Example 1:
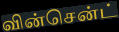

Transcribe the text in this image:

வின்சென்ட்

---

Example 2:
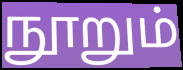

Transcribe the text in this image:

நூறும்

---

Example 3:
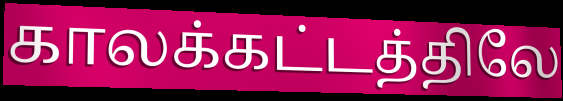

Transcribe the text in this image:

காலக்கட்டத்திலே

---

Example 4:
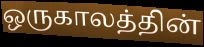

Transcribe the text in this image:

ஒருகாலத்தின்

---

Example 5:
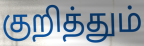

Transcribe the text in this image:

குறித்தும்